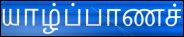
யாழ்ப்பாணச்